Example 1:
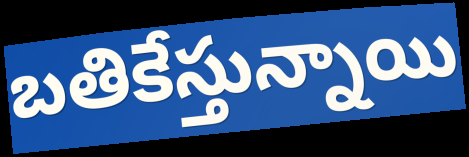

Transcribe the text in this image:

బతికేస్తున్నాయి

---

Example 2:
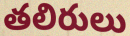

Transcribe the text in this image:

తలిరులు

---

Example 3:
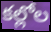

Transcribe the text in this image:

కల్లోల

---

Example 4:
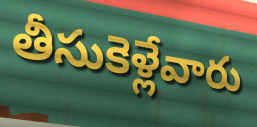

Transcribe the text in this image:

తీసుకెళ్లేవారు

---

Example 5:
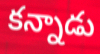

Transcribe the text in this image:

కన్నాడు